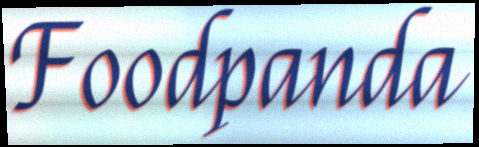
Foodpanda